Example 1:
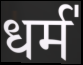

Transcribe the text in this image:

धर्म॑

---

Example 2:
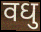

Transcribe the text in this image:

वधु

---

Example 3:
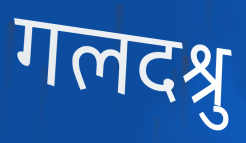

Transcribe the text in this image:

गलदश्रु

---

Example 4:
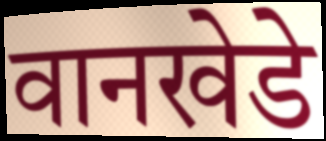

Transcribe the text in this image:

वानखेडे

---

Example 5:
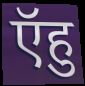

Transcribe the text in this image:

ऍहु